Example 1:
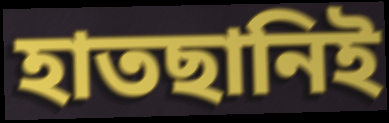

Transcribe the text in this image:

হাতছানিই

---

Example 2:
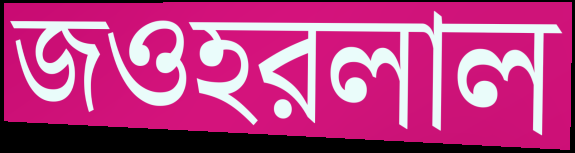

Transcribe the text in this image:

জওহরলাল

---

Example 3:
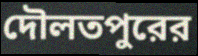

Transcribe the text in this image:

দৌলতপুরের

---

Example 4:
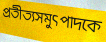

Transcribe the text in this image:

প্রতীত্যসমুৎপাদকে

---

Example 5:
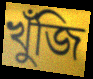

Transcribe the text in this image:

খুঁজি